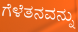
ಗೆಳೆತನವನ್ನು